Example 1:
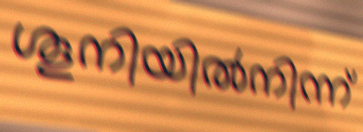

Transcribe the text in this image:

ശൂനിയിൽനിന്ന്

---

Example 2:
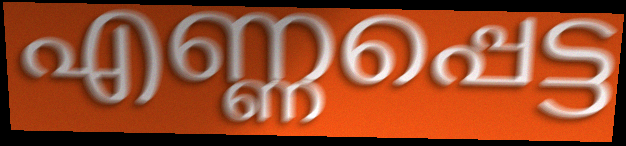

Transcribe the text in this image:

എണ്ണപ്പെട്ട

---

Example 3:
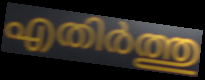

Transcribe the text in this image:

എതിർത്തു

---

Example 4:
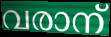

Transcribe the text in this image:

വരാന്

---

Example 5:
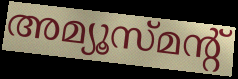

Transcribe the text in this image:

അമ്യൂസ്മന്റ്